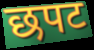
छपट